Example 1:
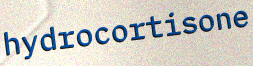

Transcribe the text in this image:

hydrocortisone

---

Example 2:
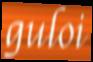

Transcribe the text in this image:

guloi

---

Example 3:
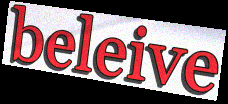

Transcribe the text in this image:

beleive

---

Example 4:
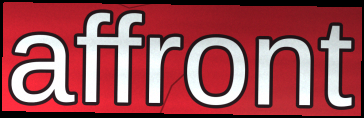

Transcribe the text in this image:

affront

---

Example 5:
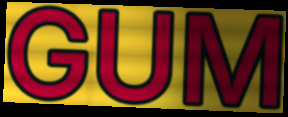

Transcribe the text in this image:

GUM